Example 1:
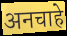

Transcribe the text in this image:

अनचाहे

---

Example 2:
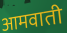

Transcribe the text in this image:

आमवाती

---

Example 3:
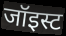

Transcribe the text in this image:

जॉइस्ट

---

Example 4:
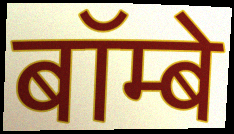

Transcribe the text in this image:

बॉम्‍बे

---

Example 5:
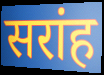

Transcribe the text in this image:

सरांह